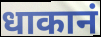
धाकानं